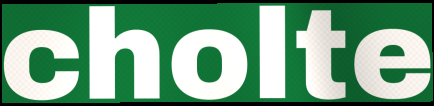
cholte